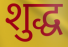
शुद्ध